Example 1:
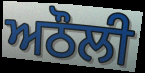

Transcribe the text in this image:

ਅਠੌਲੀ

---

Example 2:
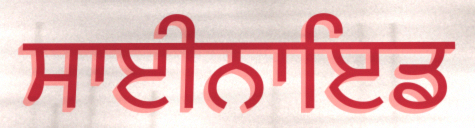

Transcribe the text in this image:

ਸਾਈਨਾਇਡ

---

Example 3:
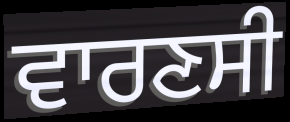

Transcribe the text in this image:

ਵਾਰਣਸੀ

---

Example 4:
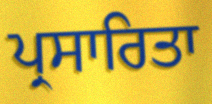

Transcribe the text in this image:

ਪ੍ਰਸਾਰਿਤਾ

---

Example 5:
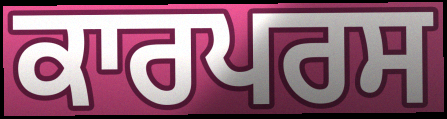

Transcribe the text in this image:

ਕਾਰਪਰਸ